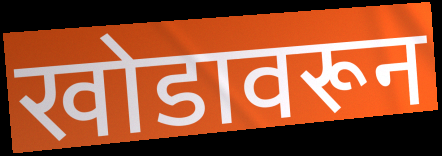
खोडावरून